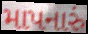
માપનારું